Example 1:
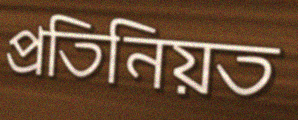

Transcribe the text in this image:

প্ৰতিনিয়ত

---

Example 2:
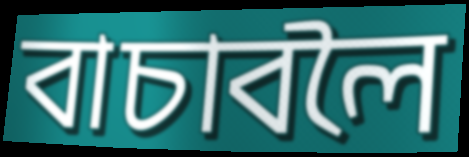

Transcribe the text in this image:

বাচাবলৈ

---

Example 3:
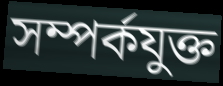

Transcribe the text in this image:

সম্পৰ্কযুক্ত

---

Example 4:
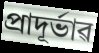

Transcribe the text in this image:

প্ৰাদূৰ্ভাৱ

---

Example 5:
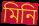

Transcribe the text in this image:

মিনি